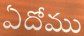
ఏదోము